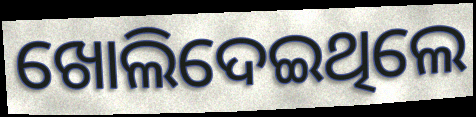
ଖୋଲିଦେଇଥିଲେ